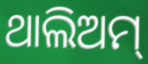
ଥାଲିଅମ୍